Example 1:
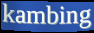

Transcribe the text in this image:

kambing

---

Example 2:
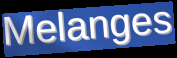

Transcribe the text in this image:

Melanges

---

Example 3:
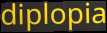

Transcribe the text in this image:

diplopia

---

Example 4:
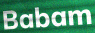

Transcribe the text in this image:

Babam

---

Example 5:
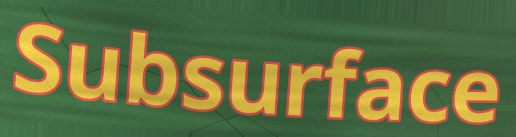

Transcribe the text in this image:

Subsurface